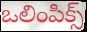
ఒలింపిక్స్